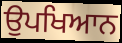
ਉਪਖਿਆਨ